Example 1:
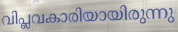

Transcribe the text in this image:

വിപ്ലവകാരിയായിരുന്നു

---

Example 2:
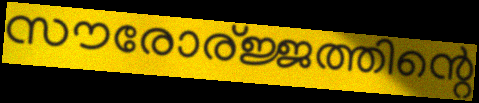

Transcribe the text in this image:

സൗരോര്ജ്ജത്തിന്റെ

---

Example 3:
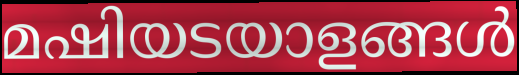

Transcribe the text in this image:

മഷിയടയാളങ്ങൾ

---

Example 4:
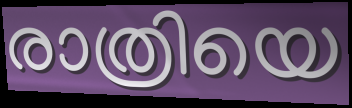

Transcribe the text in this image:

രാത്രിയെ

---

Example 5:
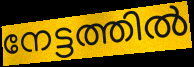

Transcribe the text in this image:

നേട്ടത്തിൽ